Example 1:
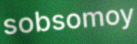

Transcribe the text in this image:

sobsomoy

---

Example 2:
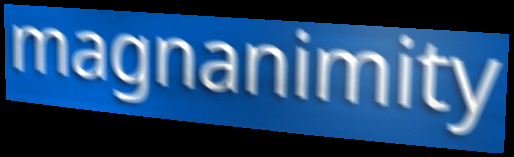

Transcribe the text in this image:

magnanimity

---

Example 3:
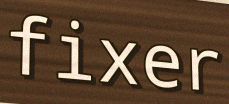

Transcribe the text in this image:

fixer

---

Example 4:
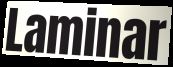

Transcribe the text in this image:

Laminar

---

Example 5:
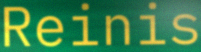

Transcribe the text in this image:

Reinis